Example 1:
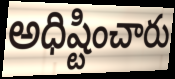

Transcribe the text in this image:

అధిష్టించారు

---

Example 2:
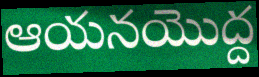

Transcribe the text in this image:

ఆయనయొద్ద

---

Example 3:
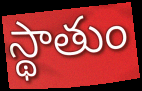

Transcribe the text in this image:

స్థాతుం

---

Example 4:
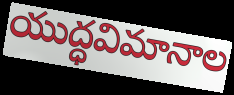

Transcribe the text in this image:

యుద్ధవిమానాల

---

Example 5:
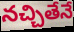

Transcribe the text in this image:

నచ్చితేనే